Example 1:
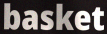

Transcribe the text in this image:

basket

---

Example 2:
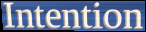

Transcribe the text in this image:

Intention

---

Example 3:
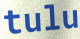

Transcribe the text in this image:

tulu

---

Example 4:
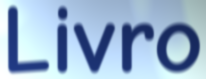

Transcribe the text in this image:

Livro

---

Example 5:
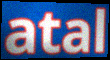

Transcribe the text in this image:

atal